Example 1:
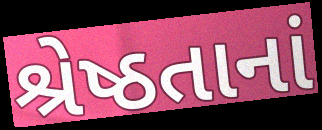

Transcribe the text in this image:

શ્રેષ્ઠતાનાં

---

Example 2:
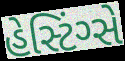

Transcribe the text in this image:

હેસ્ટિંગ્સે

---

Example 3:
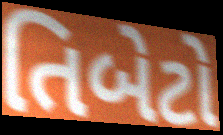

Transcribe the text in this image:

તિબેટો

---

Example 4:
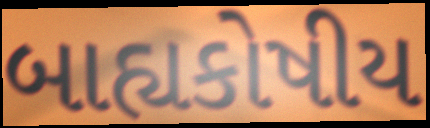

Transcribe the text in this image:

બાહ્યકોષીય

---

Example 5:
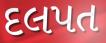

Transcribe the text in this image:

દલપત